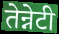
तेन्नेटी